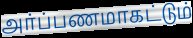
அர்ப்பணமாகட்டும்